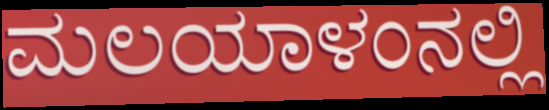
ಮಲಯಾಳಂನಲ್ಲಿ